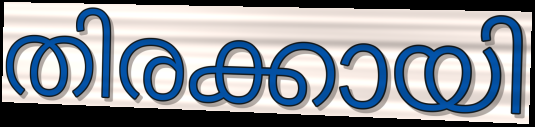
തിരക്കായി